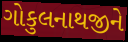
ગોકુલનાથજીને